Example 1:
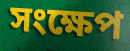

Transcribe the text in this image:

সংক্ষেপ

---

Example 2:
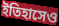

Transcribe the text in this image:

ইতিহাসেও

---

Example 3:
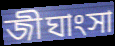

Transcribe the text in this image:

জীঘাংসা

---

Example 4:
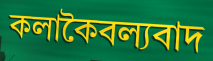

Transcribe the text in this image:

কলাকৈবল্যবাদ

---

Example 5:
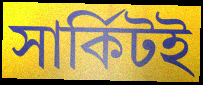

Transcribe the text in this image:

সার্কিটই